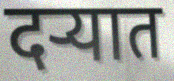
दऱ्यात